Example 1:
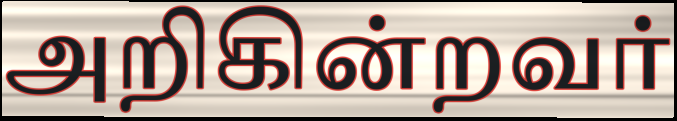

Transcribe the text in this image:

அறிகின்றவர்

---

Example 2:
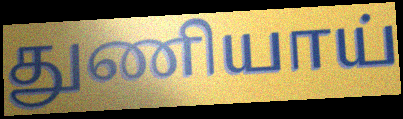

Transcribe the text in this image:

துணியாய்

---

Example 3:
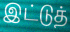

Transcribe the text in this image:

இட்டுத்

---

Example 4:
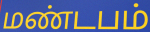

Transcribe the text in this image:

மண்டபம்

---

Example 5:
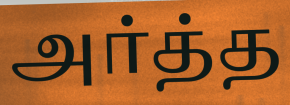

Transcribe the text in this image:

அர்த்த